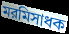
মরমিসাধক